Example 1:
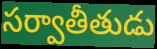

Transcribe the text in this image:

సర్వాతీతుడు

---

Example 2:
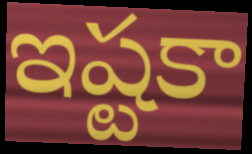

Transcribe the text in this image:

ఇష్టకా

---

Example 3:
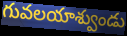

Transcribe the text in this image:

గువలయాశ్వుండు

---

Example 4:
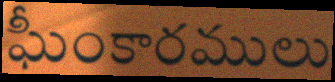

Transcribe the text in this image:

ఘీంకారములు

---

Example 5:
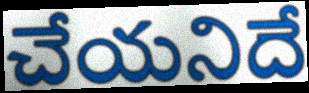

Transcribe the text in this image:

చేయనిదే